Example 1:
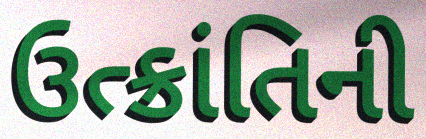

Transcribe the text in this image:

ઉત્ક્રાંતિની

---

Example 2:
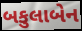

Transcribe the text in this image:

બકુલાબેન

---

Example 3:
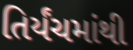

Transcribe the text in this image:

તિર્યંચમાંથી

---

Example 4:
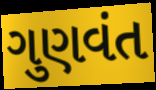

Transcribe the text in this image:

ગુણવંત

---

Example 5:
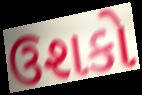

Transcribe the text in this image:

ઉશકો